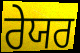
ਰੇਯਰ